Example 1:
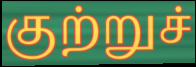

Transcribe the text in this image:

குற்றுச்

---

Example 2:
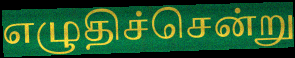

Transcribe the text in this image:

எழுதிச்சென்று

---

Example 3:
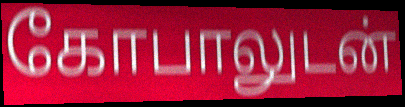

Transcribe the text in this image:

கோபாலுடன்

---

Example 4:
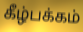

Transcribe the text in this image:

கீழ்பக்கம்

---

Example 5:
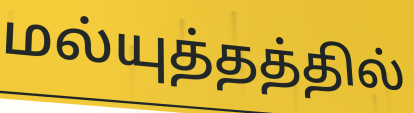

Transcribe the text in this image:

மல்யுத்தத்தில்